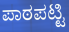
ಪಾಠಪಟ್ಟಿ